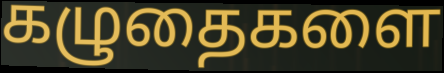
கழுதைகளை